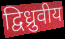
द्विध्रुवीय